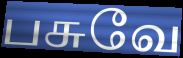
பசுவே